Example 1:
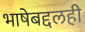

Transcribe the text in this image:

भाषेबद्दलही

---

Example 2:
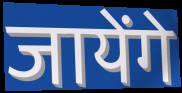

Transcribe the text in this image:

जायेंगे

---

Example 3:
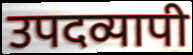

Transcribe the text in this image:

उपदव्यापी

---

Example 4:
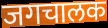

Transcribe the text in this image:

जगचालक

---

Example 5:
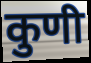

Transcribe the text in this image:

कुणी